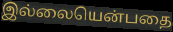
இல்லையென்பதை